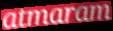
atmaram